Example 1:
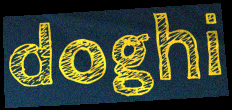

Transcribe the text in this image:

doghi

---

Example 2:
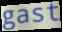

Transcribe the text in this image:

gast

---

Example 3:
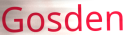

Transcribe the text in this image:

Gosden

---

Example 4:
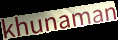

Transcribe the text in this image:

khunaman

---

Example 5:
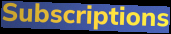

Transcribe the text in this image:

Subscriptions